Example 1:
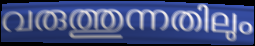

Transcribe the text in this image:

വരുത്തുന്നതിലും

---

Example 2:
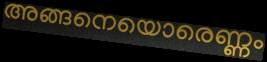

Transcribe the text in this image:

അങ്ങനെയൊരെണ്ണം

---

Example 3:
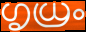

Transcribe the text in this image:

ഗൃധ്രം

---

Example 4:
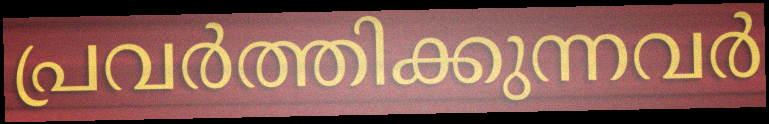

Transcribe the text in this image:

പ്രവർത്തിക്കുന്നവർ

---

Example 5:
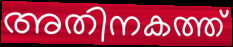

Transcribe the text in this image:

അതിനകത്ത്